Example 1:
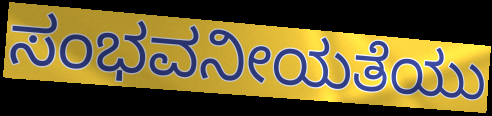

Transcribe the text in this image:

ಸಂಭವನೀಯತೆಯು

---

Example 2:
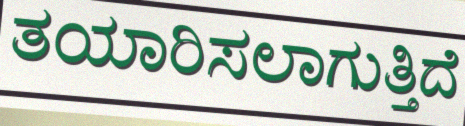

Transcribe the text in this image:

ತಯಾರಿಸಲಾಗುತ್ತಿದೆ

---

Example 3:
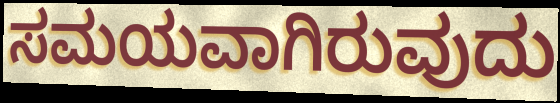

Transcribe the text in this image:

ಸಮಯವಾಗಿರುವುದು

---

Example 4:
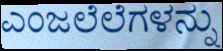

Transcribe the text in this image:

ಎಂಜಲೆಲೆಗಳನ್ನು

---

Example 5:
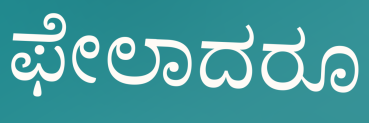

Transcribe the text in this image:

ಫೇಲಾದರೂ